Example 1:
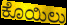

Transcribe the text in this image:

ಕೊಯಿಲು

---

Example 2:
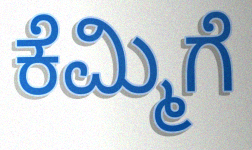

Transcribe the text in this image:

ಕೆಮ್ಮಿಗೆ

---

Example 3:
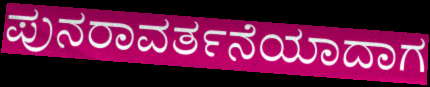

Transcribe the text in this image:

ಪುನರಾವರ್ತನೆಯಾದಾಗ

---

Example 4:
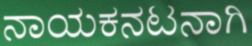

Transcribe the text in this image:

ನಾಯಕನಟನಾಗಿ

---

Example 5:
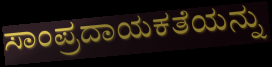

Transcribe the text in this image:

ಸಾಂಪ್ರದಾಯಕತೆಯನ್ನು